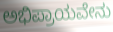
ಅಭಿಪ್ರಾಯವೇನು